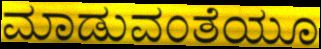
ಮಾಡುವಂತೆಯೂ